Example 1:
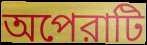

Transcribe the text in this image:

অপেরাটি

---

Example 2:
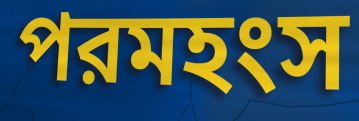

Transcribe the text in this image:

পরমহংস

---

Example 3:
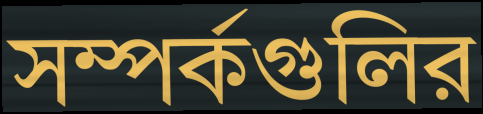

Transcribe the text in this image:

সম্পর্কগুলির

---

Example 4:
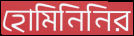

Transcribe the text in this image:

হোমিনিনির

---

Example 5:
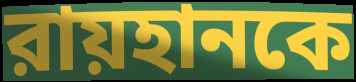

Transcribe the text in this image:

রায়হানকে